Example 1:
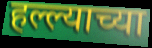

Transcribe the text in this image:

हल्ल्याच्या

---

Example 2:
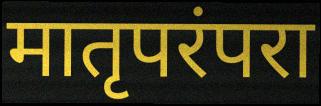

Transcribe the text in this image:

मातृपरंपरा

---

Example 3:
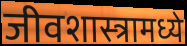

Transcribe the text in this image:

जीवशास्त्रामध्ये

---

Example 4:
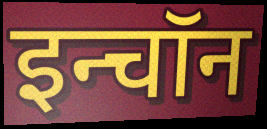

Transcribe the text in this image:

इन्चॉन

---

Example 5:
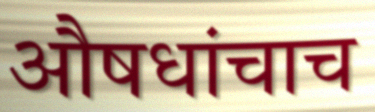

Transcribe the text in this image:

औषधांचाच